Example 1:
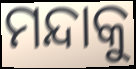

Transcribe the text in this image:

ମନ୍ଦାକୁ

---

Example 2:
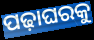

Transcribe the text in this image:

ପଢ଼ାଘରକୁ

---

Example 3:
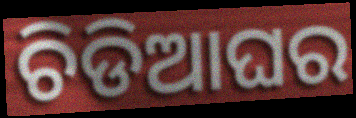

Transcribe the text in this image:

ଚିଡିଆଘର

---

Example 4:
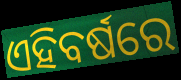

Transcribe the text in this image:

ଏହିବର୍ଷରେ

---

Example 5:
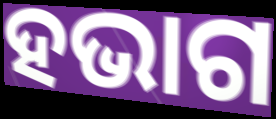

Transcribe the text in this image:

ହଭାଗ